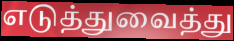
எடுத்துவைத்து